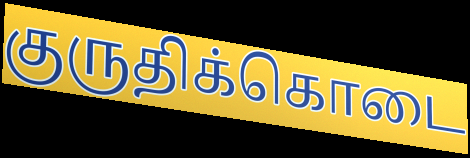
குருதிக்கொடை